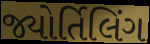
જ્યોર્તિલિંગ